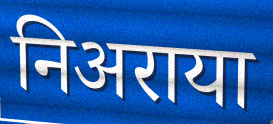
निअराया